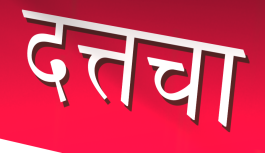
दत्तचा